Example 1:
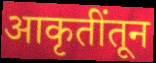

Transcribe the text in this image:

आकृतींतून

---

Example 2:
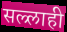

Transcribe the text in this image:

सल्लाही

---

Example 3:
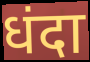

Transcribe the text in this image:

धंदा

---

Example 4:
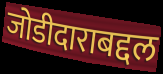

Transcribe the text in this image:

जोडीदाराबद्दल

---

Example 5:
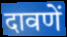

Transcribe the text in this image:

दावणें